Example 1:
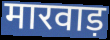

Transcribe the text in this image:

मारवाड़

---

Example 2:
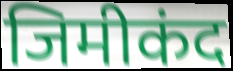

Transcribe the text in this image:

जिमीकंद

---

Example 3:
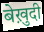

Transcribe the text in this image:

बेख़ुदी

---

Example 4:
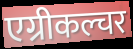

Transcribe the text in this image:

एग्रीकल्चर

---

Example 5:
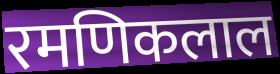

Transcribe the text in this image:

रमणिकलाल